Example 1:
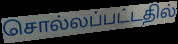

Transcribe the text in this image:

சொல்லப்பட்டதில்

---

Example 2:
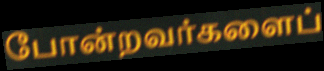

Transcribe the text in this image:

போன்றவர்களைப்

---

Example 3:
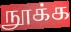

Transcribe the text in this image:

நூக்க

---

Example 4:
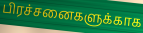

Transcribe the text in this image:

பிரச்சனைகளுக்காக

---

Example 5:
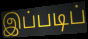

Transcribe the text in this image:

இப்படிப்